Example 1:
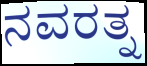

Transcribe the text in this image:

ನವರತ್ನ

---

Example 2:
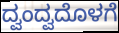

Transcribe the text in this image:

ದ್ವಂದ್ವದೊಳಗೆ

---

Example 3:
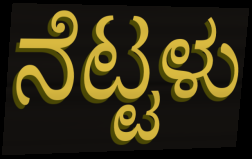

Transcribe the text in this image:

ನೆಟ್ಟಳು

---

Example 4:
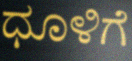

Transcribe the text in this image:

ಧೂಳಿಗೆ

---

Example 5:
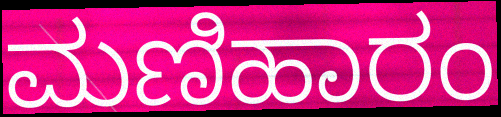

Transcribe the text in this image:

ಮಣಿಹಾರಂ